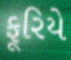
ફૂરિયે